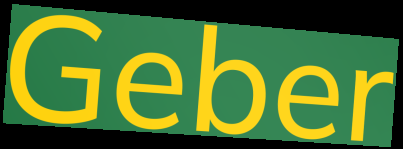
Geber